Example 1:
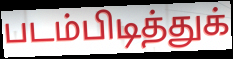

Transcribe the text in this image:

படம்பிடித்துக்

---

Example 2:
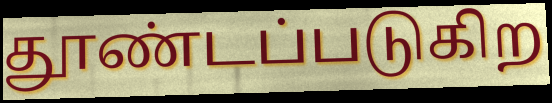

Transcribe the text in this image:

தூண்டப்படுகிற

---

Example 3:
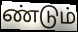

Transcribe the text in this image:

ண்டும்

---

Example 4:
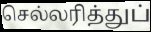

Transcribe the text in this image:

செல்லரித்துப்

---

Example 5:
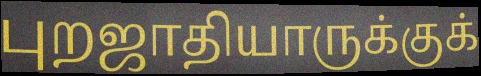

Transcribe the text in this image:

புறஜாதியாருக்குக்